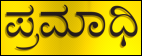
ಪ್ರಮಾಧಿ